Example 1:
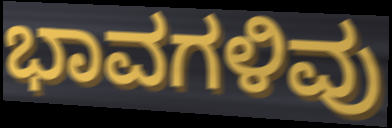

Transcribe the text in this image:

ಭಾವಗಳಿವು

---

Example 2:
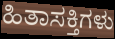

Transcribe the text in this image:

ಹಿತಾಸಕ್ತಿಗಳು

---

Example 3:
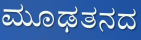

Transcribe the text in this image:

ಮೂಢತನದ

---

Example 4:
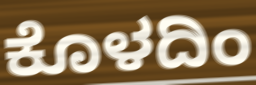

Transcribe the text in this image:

ಕೊಳದಿಂ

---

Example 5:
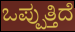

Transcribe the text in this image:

ಒಪ್ಪುತ್ತಿದೆ